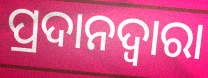
ପ୍ରଦାନଦ୍ୱାରା